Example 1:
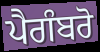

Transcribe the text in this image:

ਪੈਗੰਬਰੋ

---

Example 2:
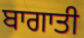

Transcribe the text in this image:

ਬਾਗਾਤੀ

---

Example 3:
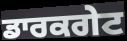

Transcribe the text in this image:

ਡਾਰਕਗੇਟ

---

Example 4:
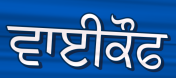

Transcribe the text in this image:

ਵਾਈਕੌਫ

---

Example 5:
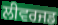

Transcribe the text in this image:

ਲੀਵਰਜਡ